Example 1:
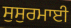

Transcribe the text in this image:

ਸੁਸੁਰਮਾਈ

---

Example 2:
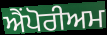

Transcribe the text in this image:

ਐਂਪੋਰੀਅਮ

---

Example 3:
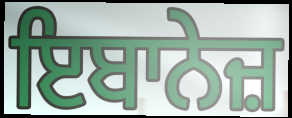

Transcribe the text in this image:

ਇਬਾਨੇਜ਼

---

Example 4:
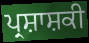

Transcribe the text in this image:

ਪ੍ਰਸ਼ਾਸ਼ਕੀ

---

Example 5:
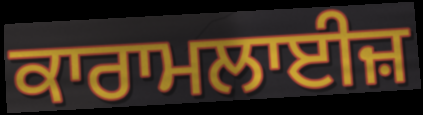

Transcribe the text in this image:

ਕਾਰਾਮਲਾਈਜ਼